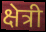
क्षेत्री